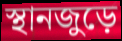
স্থানজুড়ে